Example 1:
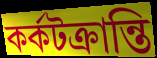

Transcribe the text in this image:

কর্কটক্রান্তি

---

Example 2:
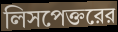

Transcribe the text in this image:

লিসপেক্তরের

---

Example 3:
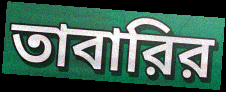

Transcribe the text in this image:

তাবারির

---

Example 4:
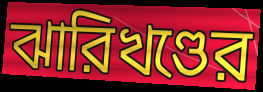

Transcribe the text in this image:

ঝারিখণ্ডের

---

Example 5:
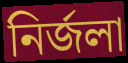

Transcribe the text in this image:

নির্জলা